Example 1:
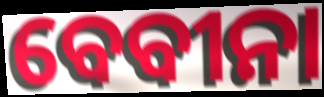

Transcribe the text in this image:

ବେବୀନା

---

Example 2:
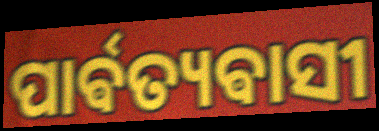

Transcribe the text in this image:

ପାର୍ଵତ୍ୟଵାସୀ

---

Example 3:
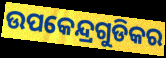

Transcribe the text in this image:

ଉପକେନ୍ଦ୍ରଗୁଡିକର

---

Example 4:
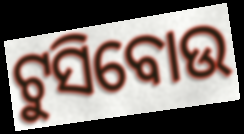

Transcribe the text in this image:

ଟୁସିବୋଉ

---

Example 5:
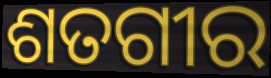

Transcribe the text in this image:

ଶତଗୀର